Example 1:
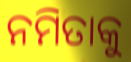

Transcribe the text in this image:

ନମିତାକୁ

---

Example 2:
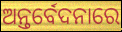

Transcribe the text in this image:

ଅନ୍ତର୍ବେଦନାରେ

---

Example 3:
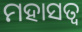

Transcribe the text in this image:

ମହାସତ୍ୱ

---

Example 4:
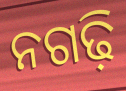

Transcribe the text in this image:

ନଗଢ଼ି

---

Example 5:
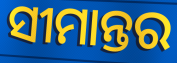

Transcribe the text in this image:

ସୀମାନ୍ତର